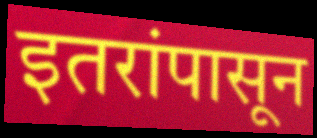
इतरांपासून